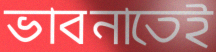
ভাবনাতেই